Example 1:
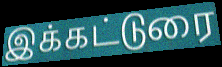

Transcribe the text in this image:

இக்கட்டுரை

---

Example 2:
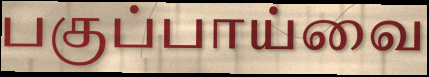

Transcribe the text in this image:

பகுப்பாய்வை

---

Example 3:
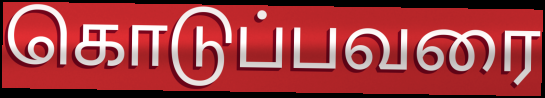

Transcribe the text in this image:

கொடுப்பவரை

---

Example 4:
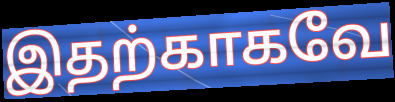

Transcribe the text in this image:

இதற்காகவே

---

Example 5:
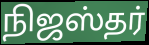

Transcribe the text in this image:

நிஜஸ்தர்